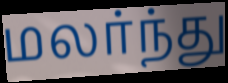
மலர்ந்து